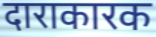
दाराकारक